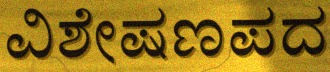
ವಿಶೇಷಣಪದ